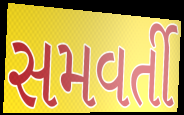
સમવર્તી